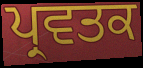
ਪ੍ਰਵਤਕ